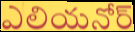
ఎలియనోర్